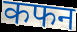
कफन